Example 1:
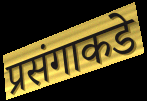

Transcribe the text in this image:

प्रसंगाकडे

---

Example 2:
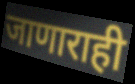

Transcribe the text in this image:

जाणाराही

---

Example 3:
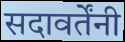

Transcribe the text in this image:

सदावर्तेंनी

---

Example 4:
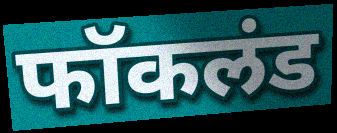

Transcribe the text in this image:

फॉकलंड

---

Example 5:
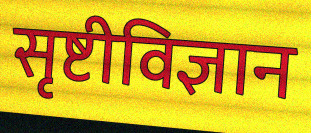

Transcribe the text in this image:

सृष्टीविज्ञान